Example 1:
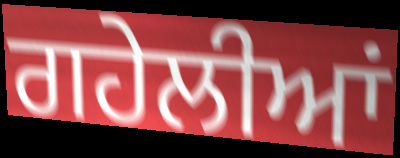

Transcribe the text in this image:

ਗਹੇਲੀਆਂ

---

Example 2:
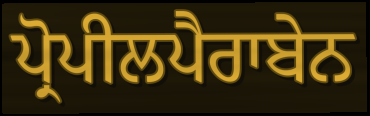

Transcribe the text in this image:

ਪ੍ਰੋਪੀਲਪੈਰਾਬੇਨ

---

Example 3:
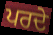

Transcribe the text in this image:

ਪਰਦੇ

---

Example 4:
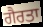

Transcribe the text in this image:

ਗੈਰਤਾ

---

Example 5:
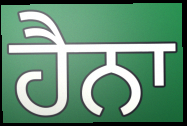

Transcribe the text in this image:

ਹੈਨਾ